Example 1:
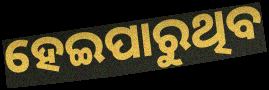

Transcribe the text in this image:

ହେଇପାରୁଥିବ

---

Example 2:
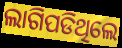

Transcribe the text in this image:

ଲାଗିପଡିଥିଲେ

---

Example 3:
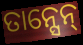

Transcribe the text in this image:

ତାନ୍ସେନ୍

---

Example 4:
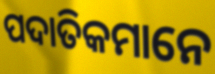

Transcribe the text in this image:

ପଦାତିକମାନେ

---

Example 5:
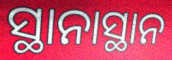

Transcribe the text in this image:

ସ୍ଥାନାସ୍ଥାନ